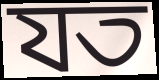
যত